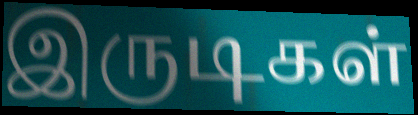
இருடிகள்